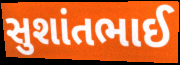
સુશાંતભાઈ